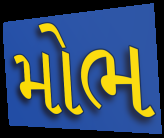
મોભ